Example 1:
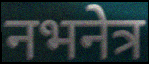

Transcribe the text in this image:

नभनेत्र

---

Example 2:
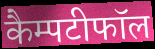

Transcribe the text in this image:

कैम्पटीफॉल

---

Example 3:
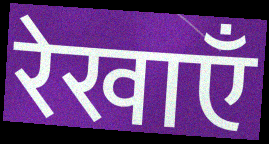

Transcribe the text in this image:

रेखाएँ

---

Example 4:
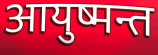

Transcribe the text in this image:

आयुष्मन्त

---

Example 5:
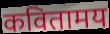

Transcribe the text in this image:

कवितामय